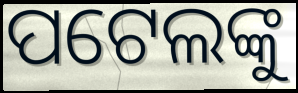
ପଟେଲଙ୍କୁ